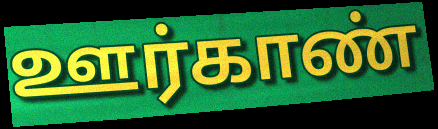
ஊர்காண்